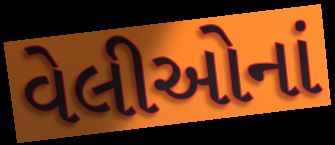
વેલીઓનાં